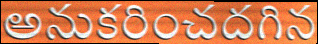
అనుకరించదగిన